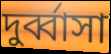
দুর্ব্বাসা